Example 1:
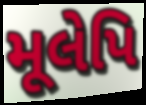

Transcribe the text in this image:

મૂલેપિ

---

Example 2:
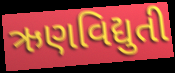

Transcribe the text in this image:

ઋણવિદ્યુતી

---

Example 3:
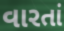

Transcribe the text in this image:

વારતાં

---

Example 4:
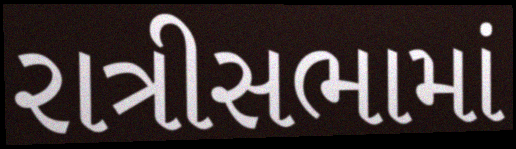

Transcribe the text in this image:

રાત્રીસભામાં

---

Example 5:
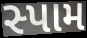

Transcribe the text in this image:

સ્પામ